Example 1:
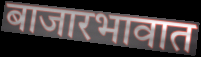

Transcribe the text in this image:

बाजारभावात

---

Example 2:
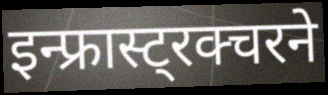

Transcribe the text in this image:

इन्फ्रास्ट्रक्चरने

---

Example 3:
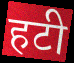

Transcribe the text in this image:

हटी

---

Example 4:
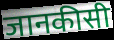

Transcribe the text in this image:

जानकीसी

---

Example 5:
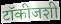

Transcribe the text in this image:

टॉकीजशी